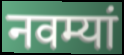
नवम्यां